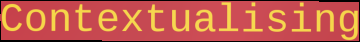
Contextualising